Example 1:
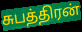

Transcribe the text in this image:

சுபத்திரன்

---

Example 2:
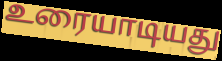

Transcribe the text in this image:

உரையாடியது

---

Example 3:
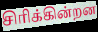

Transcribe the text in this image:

சிரிக்கின்றன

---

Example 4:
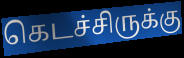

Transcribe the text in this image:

கெடச்சிருக்கு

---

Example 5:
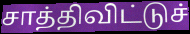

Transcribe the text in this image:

சாத்திவிட்டுச்